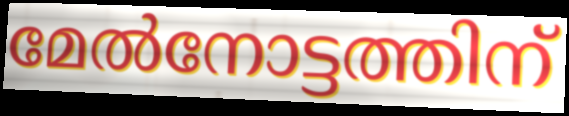
മേൽനോട്ടത്തിന്